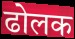
ढोलक